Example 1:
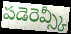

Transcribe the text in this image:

పడెరెవ్స్కీ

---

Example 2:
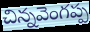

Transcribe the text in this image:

చిన్నవెంగప్ప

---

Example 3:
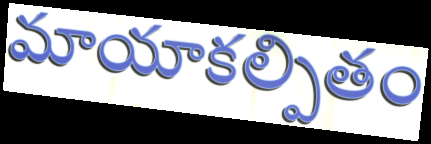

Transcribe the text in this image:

మాయాకల్పితం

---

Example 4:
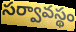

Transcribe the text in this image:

సర్వావస్థం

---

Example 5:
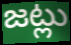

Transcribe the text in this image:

జట్లు